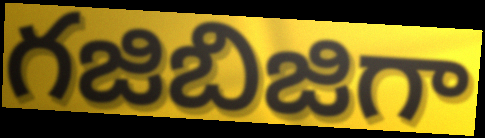
గజిబిజిగా